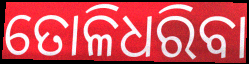
ତୋଳିଧରିବା